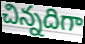
చిన్నదిగా